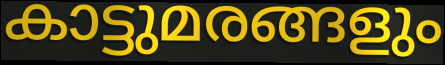
കാട്ടുമരങ്ങളും